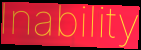
Inability